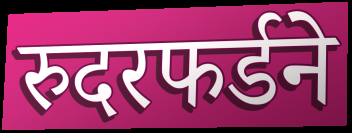
रुदरफर्डने